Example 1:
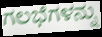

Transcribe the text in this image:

ಗಲಭೆಗಳನ್ನು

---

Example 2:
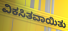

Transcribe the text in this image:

ವಿಕಸಿತವಾಯಿತು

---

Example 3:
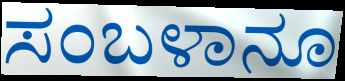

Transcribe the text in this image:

ಸಂಬಳಾನೂ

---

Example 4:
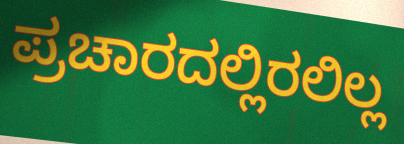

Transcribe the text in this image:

ಪ್ರಚಾರದಲ್ಲಿರಲಿಲ್ಲ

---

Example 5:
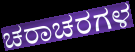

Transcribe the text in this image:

ಚರಾಚರಗಳ